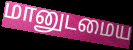
மானுடமைய